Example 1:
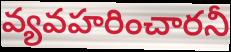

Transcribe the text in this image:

వ్యవహరించారనీ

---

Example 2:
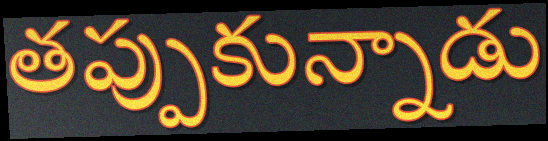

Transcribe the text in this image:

తప్పుకున్నాడు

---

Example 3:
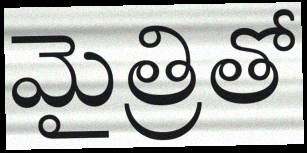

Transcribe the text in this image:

మైత్రితో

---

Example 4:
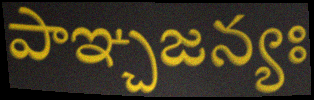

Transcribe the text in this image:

పాఞ్చజన్యః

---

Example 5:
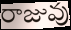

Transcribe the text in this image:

రాజువు